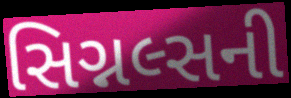
સિગ્નલ્સની